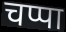
चप्पा